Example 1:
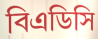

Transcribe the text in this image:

বিএডিসি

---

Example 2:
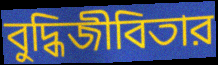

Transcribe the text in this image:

বুদ্ধিজীবিতার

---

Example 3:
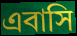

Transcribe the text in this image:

এবাসি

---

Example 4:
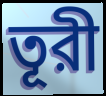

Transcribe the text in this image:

তূরী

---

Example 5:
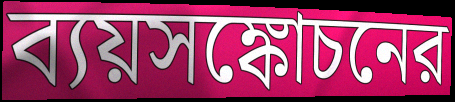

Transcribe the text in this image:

ব্যয়সঙ্কোচনের